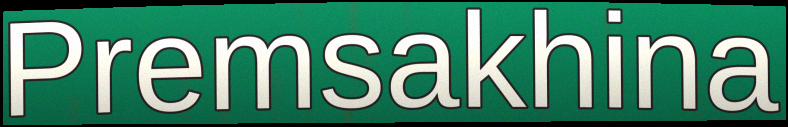
Premsakhina